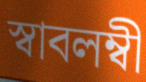
স্বাবলম্বী